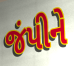
જંપીને